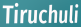
Tiruchuli